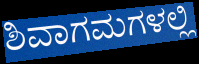
ಶಿವಾಗಮಗಳಲ್ಲಿ